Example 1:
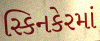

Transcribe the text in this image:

સ્કિનકેરમાં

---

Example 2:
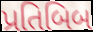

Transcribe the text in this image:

પ્રતિબિબ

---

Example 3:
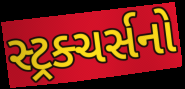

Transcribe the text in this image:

સ્ટ્રક્ચર્સનો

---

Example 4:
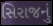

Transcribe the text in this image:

સિરાજનું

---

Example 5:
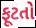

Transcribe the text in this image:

ફૂટતો